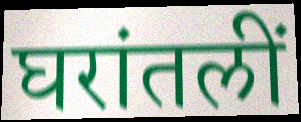
घरांतलीं